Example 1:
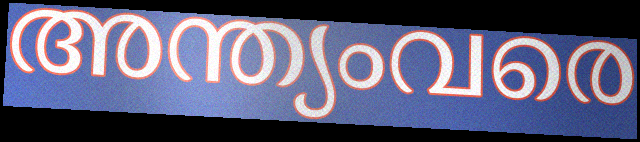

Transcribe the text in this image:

അന്ത്യംവരെ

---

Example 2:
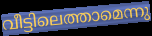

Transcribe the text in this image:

വീട്ടിലെത്താമെന്നു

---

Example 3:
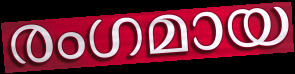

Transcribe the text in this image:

രംഗമായ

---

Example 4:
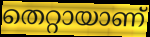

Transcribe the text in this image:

തെറ്റായാണ്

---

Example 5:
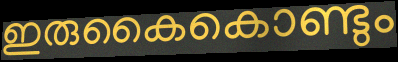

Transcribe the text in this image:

ഇരുകൈകൊണ്ടും